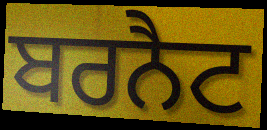
ਬਰਨੈਟ